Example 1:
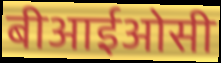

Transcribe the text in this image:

बीआईओसी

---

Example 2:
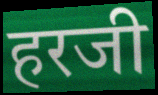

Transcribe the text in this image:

हरजी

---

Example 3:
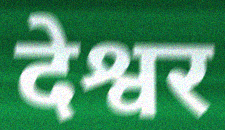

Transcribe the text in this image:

देश्वर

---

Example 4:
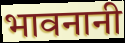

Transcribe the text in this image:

भावनानी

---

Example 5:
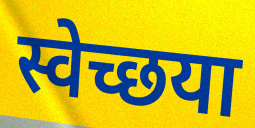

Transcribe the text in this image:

स्वेच्छया